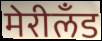
मेरीलँड